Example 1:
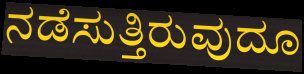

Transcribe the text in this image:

ನಡೆಸುತ್ತಿರುವುದೂ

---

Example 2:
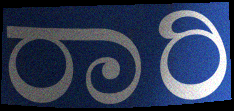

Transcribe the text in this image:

ರಾರಿ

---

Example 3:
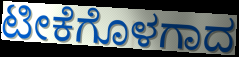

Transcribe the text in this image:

ಟೀಕೆಗೊಳಗಾದ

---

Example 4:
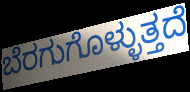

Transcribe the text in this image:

ಬೆರಗುಗೊಳ್ಳುತ್ತದೆ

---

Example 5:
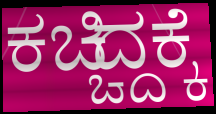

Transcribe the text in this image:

ಕಚ್ಚಿದ್ದಕ್ಕೆ